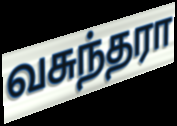
வசுந்தரா